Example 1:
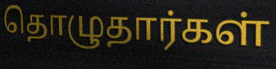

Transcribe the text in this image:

தொழுதார்கள்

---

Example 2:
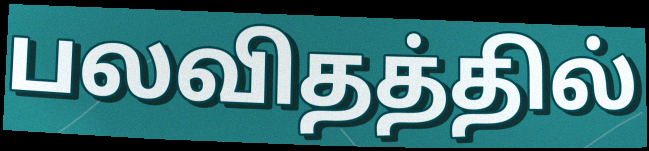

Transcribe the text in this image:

பலவிதத்தில்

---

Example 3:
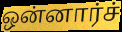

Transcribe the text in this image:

ஒன்னார்ச்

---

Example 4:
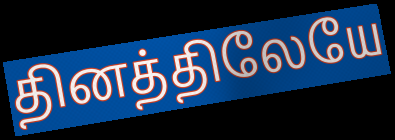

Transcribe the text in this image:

தினத்திலேயே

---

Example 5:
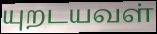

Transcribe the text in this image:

யுறடயவள்